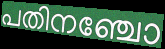
പതിനഞ്ചോ